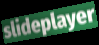
slideplayer